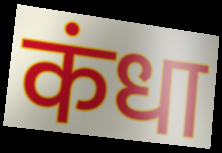
कंधा